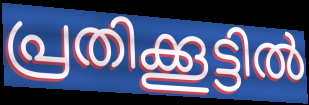
പ്രതിക്കൂട്ടിൽ